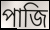
পাজি